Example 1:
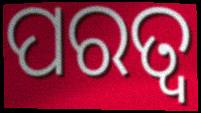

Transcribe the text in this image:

ପରତ୍ୱ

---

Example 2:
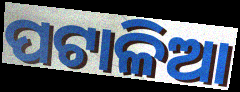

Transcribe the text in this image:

ପଟାଳିଆ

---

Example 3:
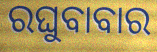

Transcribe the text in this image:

ରଘୁବାବାର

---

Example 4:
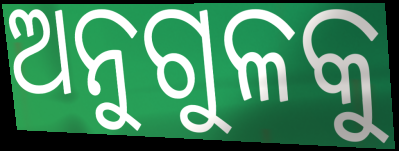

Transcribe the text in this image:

ଅନୁଗୁଳକୁ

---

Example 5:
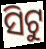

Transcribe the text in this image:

ସିଟୁ